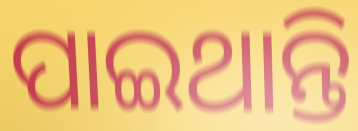
ପାଇଥାନ୍ତି